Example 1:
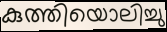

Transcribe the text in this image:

കുത്തിയൊലിച്ചു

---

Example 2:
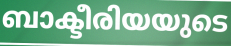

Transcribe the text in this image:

ബാക്ടീരിയയുടെ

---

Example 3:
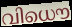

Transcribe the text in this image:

വിധൌ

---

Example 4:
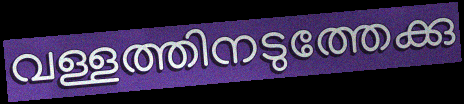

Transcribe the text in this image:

വള്ളത്തിനടുത്തേക്കു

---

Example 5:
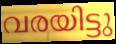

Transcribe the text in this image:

വരയിട്ടു